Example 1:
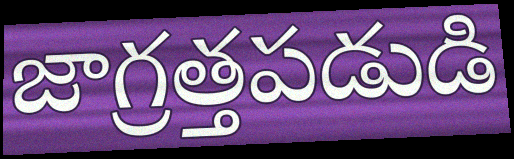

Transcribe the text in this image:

జాగ్రత్తపడుడి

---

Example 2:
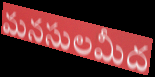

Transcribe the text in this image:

మనసులమీద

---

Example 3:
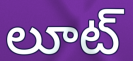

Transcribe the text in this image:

లూట్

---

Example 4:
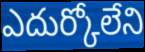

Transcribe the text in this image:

ఎదుర్కోలేని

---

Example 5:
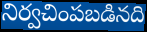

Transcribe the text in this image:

నిర్వచింపబడినది